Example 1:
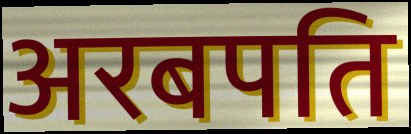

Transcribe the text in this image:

अरबपति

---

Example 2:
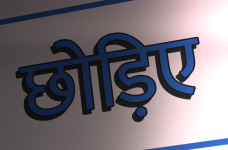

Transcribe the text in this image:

छोड़िए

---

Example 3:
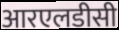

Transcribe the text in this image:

आरएलडीसी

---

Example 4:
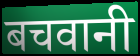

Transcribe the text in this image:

बचवानी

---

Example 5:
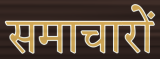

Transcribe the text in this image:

समाचारों